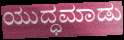
ಯುದ್ಧಮಾಡು